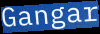
Gangar